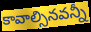
కావాల్సినవన్నీ